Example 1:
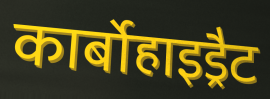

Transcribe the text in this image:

कार्बोहाइड्रैट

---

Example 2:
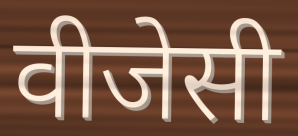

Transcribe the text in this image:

वीजेसी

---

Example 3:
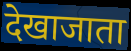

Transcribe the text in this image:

देखाजाता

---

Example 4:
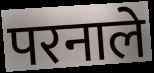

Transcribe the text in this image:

परनाले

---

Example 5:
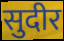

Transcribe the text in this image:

सुदीर